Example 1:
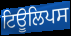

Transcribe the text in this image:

ਟਿਊਲਿਪਸ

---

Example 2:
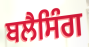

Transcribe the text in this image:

ਬਲੈਸਿੰਗ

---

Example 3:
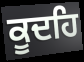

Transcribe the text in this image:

ਕੂਦਹਿ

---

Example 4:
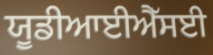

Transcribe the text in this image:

ਯੂਡੀਆਈਐੱਸਈ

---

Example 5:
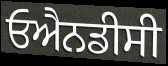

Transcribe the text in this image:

ਓਐਨਡੀਸੀ